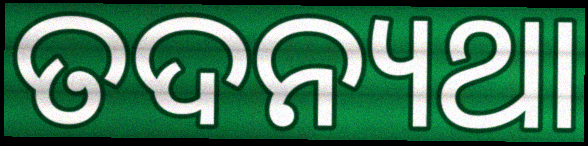
ତଦନ୍ୟଥା